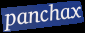
panchax